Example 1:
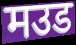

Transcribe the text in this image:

मउड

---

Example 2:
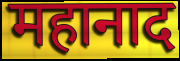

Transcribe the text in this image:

महानाद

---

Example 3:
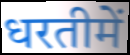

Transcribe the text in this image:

धरतीमें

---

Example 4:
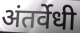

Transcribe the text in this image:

अंतर्वेधी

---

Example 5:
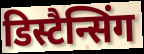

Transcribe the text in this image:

डिस्टैन्सिंग